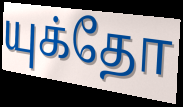
யுக்தோ